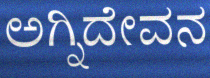
ಅಗ್ನಿದೇವನ